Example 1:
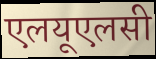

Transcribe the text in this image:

एलयूएलसी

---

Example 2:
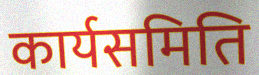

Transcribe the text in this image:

कार्यसमिति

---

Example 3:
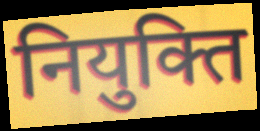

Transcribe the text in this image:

नियुक्‍ति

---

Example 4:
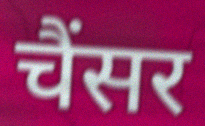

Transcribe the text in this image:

चैंसर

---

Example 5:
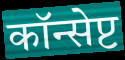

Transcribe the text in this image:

कॉन्सेप्ट